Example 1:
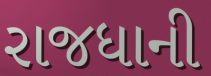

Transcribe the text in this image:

રાજધાની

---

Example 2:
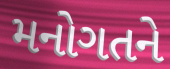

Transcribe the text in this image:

મનોગતને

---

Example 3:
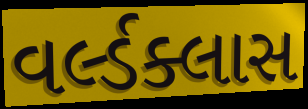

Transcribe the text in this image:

વર્લ્ડક્લાસ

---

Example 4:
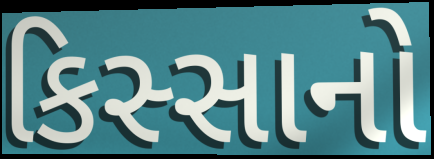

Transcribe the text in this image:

કિસ્સાનો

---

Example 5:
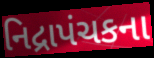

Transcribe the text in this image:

નિદ્રાપંચકના